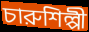
চারুশিল্পী